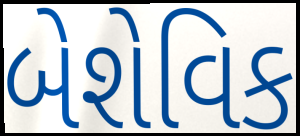
બેશેવિક